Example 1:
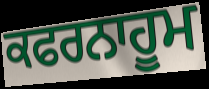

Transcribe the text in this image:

ਕਫਰਨਾਹੂਮ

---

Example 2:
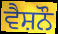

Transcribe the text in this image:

ਵੈਸ਼ਨੌ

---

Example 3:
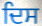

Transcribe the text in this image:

ਦਿਸ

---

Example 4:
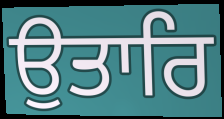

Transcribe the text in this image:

ਉਤਾਰਿ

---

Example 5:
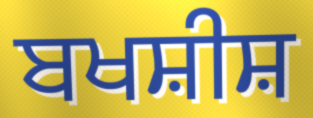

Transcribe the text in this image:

ਬਖਸ਼ੀਸ਼